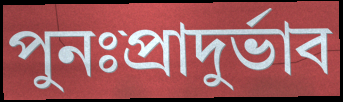
পুনঃপ্রাদুর্ভাব